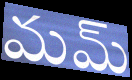
మమ్